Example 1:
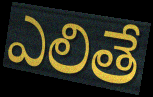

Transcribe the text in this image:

ఎలితే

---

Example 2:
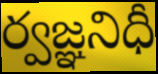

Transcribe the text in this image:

ర్వజ్ఞనిధీ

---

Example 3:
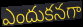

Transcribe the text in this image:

ఎందుకనగా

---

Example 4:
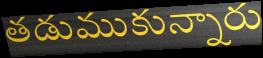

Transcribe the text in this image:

తడుముకున్నారు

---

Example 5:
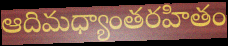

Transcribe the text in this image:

ఆదిమధ్యాంతరహితం